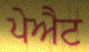
ਪੇਐਟ